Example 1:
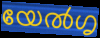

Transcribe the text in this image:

യേൽഗൃ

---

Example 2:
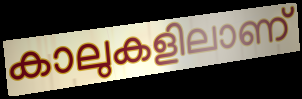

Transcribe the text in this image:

കാലുകളിലാണ്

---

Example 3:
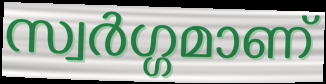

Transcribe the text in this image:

സ്വർഗ്ഗമാണ്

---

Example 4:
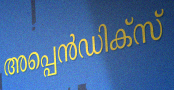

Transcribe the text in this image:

അപ്പെൻഡിക്സ്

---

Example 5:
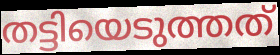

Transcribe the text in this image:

തട്ടിയെടുത്തത്